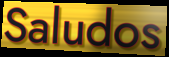
Saludos